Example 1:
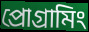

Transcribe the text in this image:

প্রোগ্রামিং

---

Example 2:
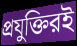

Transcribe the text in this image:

প্রযুক্তিরই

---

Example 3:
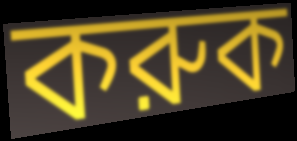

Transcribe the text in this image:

করুক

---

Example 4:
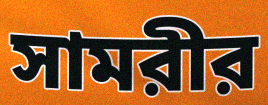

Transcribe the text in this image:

সামরীর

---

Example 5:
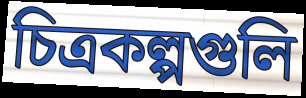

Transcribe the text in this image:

চিত্রকল্পগুলি